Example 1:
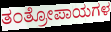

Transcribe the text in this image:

ತಂತ್ರೋಪಾಯಗಳ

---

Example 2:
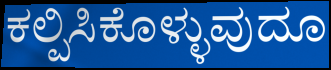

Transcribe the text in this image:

ಕಲ್ಪಿಸಿಕೊಳ್ಳುವುದೂ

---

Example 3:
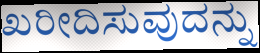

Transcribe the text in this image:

ಖರೀದಿಸುವುದನ್ನು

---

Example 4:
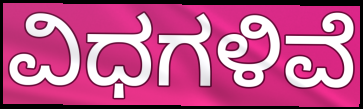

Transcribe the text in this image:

ವಿಧಗಳಿವೆ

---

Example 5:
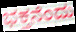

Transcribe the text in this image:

ಭಕ್ತನೆಂದು